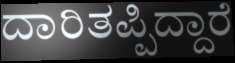
ದಾರಿತಪ್ಪಿದ್ದಾರೆ